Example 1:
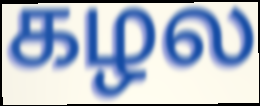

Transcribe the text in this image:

கழல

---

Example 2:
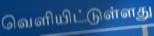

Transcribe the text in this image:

வெளியிட்டுள்ளது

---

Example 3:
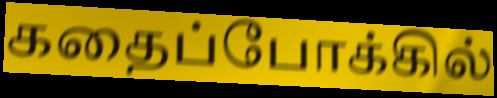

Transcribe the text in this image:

கதைப்போக்கில்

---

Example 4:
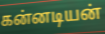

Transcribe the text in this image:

கன்னடியன்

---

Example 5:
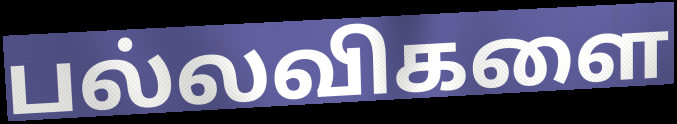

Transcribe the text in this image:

பல்லவிகளை